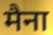
मैना